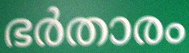
ഭർതാരം